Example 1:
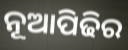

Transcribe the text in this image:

ନୂଆପିଢିର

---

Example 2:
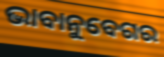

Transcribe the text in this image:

ଭାବାନୁବେଗର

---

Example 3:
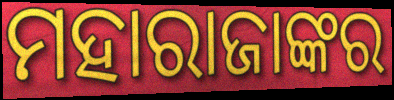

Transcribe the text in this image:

ମହାରାଜାଙ୍କର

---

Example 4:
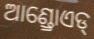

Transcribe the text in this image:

ଆଣ୍ଡ୍ରୋଏଡ୍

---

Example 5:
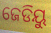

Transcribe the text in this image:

ଜେଡିୟୁ